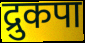
द्रुकपा